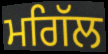
ਮਗਿੱਲ